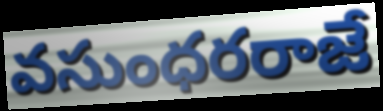
వసుంధరరాజే